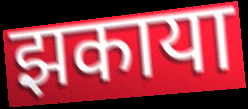
झकाया